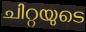
ചിറ്റയുടെ